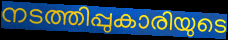
നടത്തിപ്പുകാരിയുടെ